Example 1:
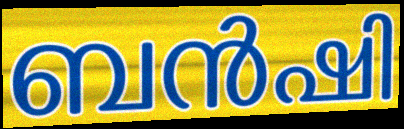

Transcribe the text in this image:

ബൻഷി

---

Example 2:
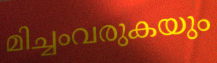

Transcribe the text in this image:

മിച്ചംവരുകയും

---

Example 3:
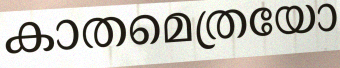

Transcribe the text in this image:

കാതമെത്രയോ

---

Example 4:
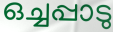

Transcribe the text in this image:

ഒച്ചപ്പാടു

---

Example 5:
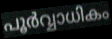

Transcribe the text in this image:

പൂർവ്വാധികം